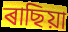
ৰাছিয়া